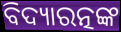
ବିଦ୍ୟାରତ୍ନଙ୍କ